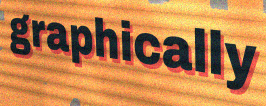
graphically